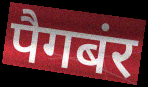
पैगबंर